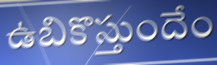
ఉబికొస్తుందేం